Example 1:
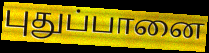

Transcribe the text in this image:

புதுப்பானை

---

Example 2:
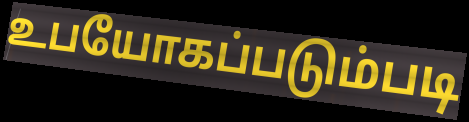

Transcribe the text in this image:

உபயோகப்படும்படி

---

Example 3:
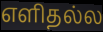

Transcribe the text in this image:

எளிதல்ல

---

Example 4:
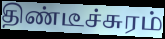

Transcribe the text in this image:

திண்டீச்சுரம்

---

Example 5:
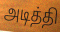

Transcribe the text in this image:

அடித்தி